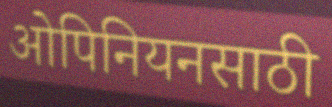
ओपिनियनसाठी